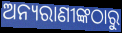
ଅନ୍ୟରାଣୀଙ୍କଠାରୁ